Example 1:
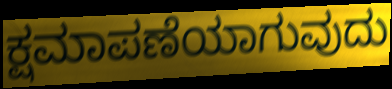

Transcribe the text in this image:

ಕ್ಷಮಾಪಣೆಯಾಗುವುದು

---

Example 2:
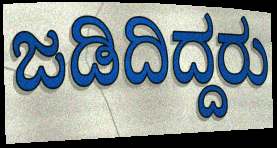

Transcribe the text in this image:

ಜಡಿದಿದ್ದರು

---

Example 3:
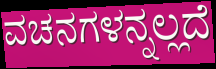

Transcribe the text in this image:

ವಚನಗಳನ್ನಲ್ಲದೆ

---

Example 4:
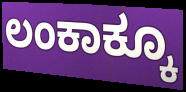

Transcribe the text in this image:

ಲಂಕಾಕ್ಕೂ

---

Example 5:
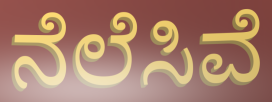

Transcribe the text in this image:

ನೆಲೆಸಿವೆ